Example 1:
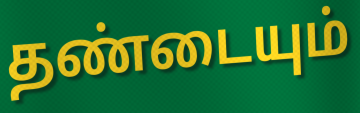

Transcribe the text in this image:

தண்டையும்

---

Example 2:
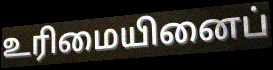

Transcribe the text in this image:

உரிமையினைப்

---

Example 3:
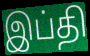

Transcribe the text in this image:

இப்தி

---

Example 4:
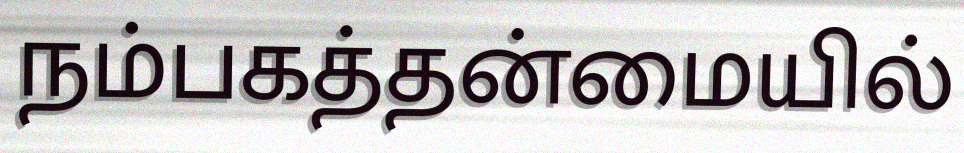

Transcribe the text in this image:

நம்பகத்தன்மையில்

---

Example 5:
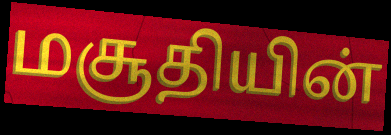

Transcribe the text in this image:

மசூதியின்